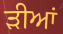
ੜੀਆਂ